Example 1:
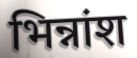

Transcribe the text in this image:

भिन्नांश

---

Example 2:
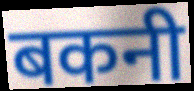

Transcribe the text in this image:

बकनी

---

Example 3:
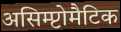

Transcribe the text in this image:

असिम्प्टोमैटिक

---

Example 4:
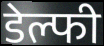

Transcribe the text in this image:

डेल्फी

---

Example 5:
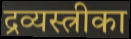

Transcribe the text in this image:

द्रव्यस्त्रीका